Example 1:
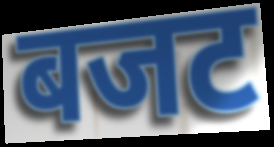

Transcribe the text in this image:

बजट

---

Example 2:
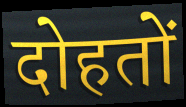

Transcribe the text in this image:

दोहतों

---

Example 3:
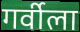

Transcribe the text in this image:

गर्वीला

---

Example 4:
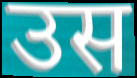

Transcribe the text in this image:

उस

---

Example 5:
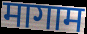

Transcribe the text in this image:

मागाम